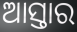
ଆସ୍ତାର